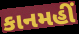
કાનમહીં